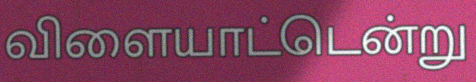
விளையாட்டென்று